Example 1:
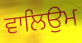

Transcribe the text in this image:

ਵਾਲਿਉਮ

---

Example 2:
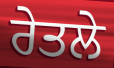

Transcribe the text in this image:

ਰੇਤਲੇ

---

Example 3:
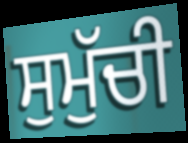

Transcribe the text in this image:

ਸੁਮੁੱਚੀ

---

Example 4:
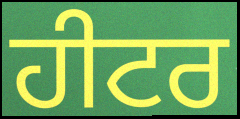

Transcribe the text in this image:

ਹੀਟਰ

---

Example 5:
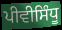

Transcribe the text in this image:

ਪੀਵੀਸਿੰਧੂ